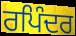
ਰਪਿੰਦਰ